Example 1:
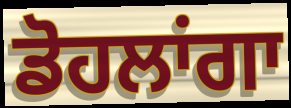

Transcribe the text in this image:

ਡੋਹਲਾਂਗਾ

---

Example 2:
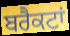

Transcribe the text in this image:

ਬਰੈਕਟਾਂ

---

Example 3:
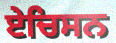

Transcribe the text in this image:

ਏਚਿਸਨ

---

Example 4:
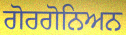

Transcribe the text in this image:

ਗੋਰਗੋਨਿਅਨ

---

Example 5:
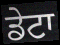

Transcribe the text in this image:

ਡੇਟਾ